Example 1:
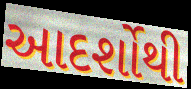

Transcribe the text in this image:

આદર્શોથી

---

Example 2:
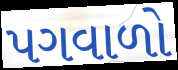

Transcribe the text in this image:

પગવાળો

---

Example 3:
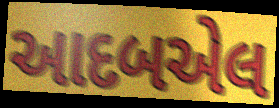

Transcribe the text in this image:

આદબએલ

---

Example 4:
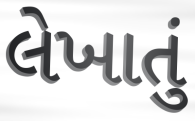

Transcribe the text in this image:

લેખાતું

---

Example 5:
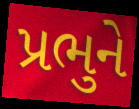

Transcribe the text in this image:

પ્રભુને